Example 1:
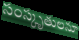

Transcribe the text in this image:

సంస్కృతులనూ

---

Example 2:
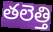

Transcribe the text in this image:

తలెత్తి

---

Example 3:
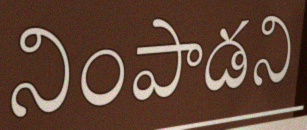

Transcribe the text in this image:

నింపాడని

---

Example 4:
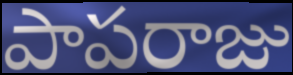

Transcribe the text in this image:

పాపరాజు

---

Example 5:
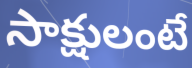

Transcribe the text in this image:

సాక్షులంటే